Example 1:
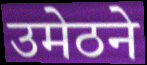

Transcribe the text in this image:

उमेठने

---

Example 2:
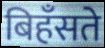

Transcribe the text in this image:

बिहँसते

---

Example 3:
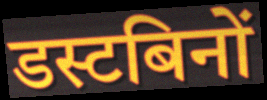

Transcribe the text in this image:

डस्टबिनों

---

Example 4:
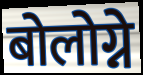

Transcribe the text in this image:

बोलोग्ने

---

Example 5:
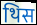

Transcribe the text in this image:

थिस